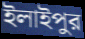
ইলাইপুর